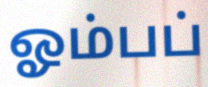
ஓம்பப்